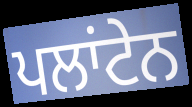
ਪਲਾਂਟੇਨ